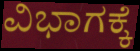
ವಿಭಾಗಕ್ಕೆ